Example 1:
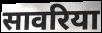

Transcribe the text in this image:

सावरिया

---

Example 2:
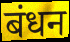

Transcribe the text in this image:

बंधन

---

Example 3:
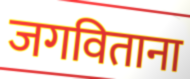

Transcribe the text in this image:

जगविताना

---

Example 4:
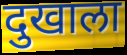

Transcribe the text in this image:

दुखाला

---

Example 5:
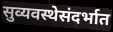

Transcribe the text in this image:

सुव्यवस्थेसंदर्भात